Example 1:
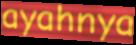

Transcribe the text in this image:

ayahnya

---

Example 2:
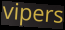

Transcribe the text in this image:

vipers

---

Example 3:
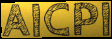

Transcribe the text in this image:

AICPI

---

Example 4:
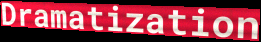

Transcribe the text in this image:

Dramatization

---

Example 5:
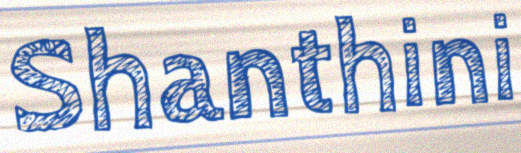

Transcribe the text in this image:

Shanthini